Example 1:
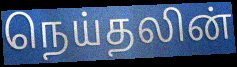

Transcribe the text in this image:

நெய்தலின்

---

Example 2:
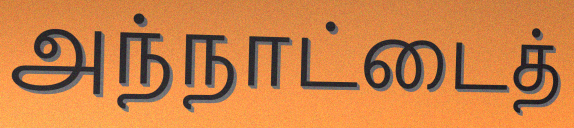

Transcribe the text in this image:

அந்நாட்டைத்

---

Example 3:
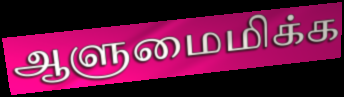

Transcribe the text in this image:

ஆளுமைமிக்க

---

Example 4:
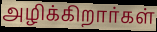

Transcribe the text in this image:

அழிக்கிறார்கள்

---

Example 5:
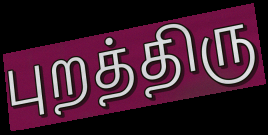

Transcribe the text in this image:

புறத்திரு